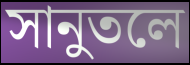
সানুতলে